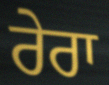
ਰੇਰਾ